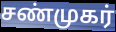
சண்முகர்